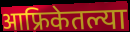
आफ्रिकेतल्या